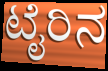
ಟೈರಿನ